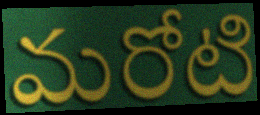
మరోటి